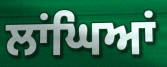
ਲਾਂਘਿਆਂ